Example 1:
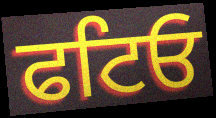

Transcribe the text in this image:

ਫਟਿਓ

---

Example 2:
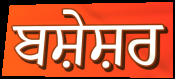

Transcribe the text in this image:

ਬਸ਼ੇਸ਼ਰ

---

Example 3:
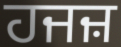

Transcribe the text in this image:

ਹਜਜ਼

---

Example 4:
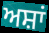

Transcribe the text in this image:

ਅਸ਼ਾਂ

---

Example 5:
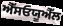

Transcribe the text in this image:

ਐੱਸਓਯੂਐੱਲ